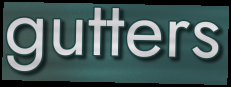
gutters